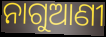
ନାଗୁଆଣୀ